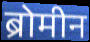
ब्रोमीन